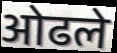
ओढले